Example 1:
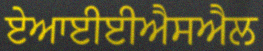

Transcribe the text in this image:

ਏਆਈਈਐਸਐਲ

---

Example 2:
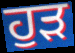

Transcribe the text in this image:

ਹੁੜ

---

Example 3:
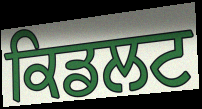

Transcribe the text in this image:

ਕਿਡਲਟ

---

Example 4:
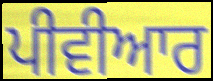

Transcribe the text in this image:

ਪੀਵੀਆਰ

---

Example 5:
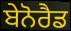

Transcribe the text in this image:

ਬੇਨੋਰੈਡ